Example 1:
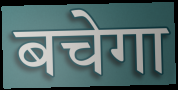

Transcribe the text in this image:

बचेगा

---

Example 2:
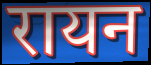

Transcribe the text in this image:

रायन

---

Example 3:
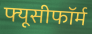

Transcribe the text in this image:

फ्यूसीफॉर्म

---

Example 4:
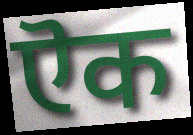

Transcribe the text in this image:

ऎक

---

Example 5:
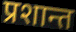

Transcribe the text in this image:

प्रशान्त